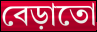
বেড়াতো